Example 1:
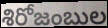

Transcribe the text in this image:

శిరోజంబుల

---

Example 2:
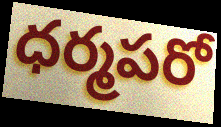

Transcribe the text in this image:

ధర్మపరో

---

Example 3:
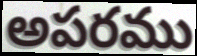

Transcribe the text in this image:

అపరము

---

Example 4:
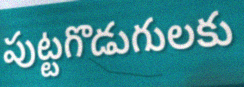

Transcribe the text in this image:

పుట్టగొడుగులకు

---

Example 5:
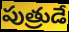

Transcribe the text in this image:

పుత్రుడే